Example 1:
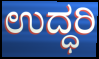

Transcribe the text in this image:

ಉದ್ಧರಿ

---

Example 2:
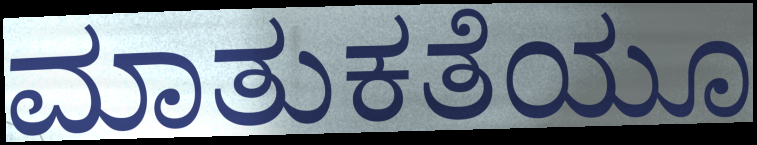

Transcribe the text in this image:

ಮಾತುಕತೆಯೂ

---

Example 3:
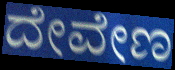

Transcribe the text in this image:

ದೇವೇಣ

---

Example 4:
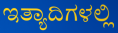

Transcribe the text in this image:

ಇತ್ಯಾದಿಗಳಲ್ಲಿ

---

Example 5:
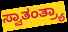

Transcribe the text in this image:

ಸ್ವಾತಂತ್ರ್ಯಾ